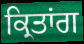
ਕ੍ਰਿਤਾਂਗ